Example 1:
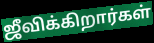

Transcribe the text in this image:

ஜீவிக்கிறார்கள்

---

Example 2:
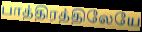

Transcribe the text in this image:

பாத்திரத்திலேயே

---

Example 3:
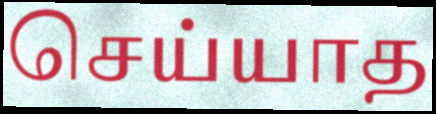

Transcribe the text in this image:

செய்யாத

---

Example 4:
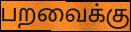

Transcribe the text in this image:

பறவைக்கு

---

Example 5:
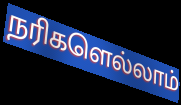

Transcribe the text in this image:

நரிகளெல்லாம்